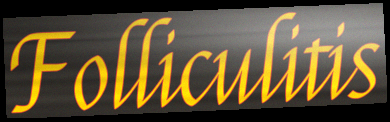
Folliculitis